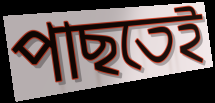
পাছতেই